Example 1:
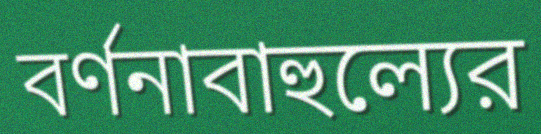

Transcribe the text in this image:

বর্ণনাবাহুল্যের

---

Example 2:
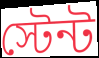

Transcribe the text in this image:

স্টেন্ট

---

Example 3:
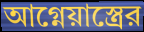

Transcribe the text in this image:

আগ্নেয়াস্ত্রের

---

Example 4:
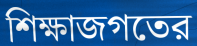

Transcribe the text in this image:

শিক্ষাজগতের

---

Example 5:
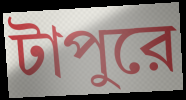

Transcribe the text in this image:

টাপুরে